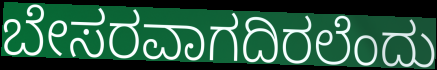
ಬೇಸರವಾಗದಿರಲೆಂದು